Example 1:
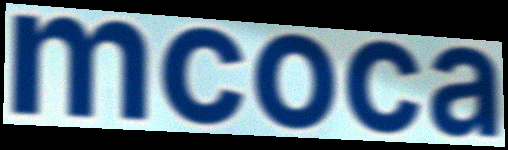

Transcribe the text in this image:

mcoca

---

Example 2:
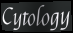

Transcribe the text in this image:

Cytology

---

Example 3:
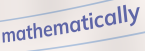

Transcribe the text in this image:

mathematically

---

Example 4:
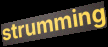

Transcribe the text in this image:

strumming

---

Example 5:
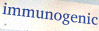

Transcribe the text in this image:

immunogenic